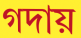
গদায়